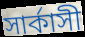
সার্কাসী